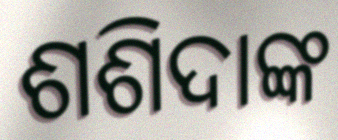
ଶଶିଦାଙ୍କ